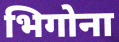
भिगोना